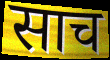
साच